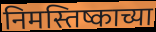
निमस्तिष्काच्या